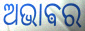
ଅଭାଵର